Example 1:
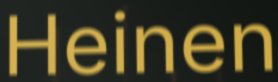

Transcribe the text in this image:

Heinen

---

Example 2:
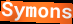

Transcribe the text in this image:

Symons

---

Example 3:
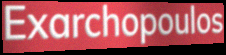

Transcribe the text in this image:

Exarchopoulos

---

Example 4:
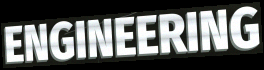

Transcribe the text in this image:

ENGINEERING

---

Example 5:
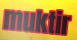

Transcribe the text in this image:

muktir